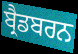
ਬ੍ਰੈਡਬਰਨ